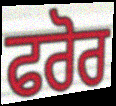
ਫਰੋਰ